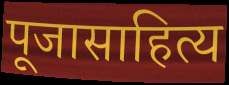
पूजासाहित्य